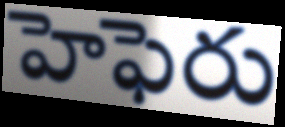
హెఫెరు